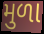
મુળા